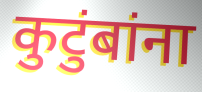
कुटुंबांना